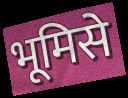
भूमिसे